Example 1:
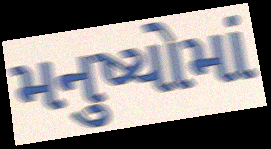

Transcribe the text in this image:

મનુષ્યોમાં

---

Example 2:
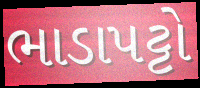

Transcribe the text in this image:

ભાડાપટ્ટો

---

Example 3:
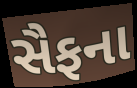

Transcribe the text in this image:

સૈફના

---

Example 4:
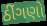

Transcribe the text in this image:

ઠીંગણો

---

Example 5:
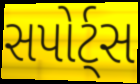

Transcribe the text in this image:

સપોર્ટ્સ